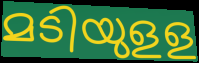
മടിയുളള